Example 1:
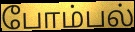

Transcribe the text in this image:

போம்பல்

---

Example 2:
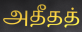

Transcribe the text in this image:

அதீதத்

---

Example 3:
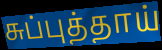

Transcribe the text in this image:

சுப்புத்தாய்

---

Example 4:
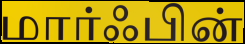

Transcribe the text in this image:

மார்ஃபின்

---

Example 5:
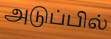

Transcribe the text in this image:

அடுப்பில்